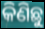
କିଣିଛୁ